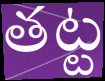
తట్ట